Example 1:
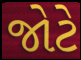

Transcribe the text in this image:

જોટે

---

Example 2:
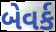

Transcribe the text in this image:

બેવર્ક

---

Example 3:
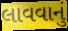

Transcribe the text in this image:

લાવવાનું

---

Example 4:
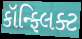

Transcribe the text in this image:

કૉન્ફ્લિક્ટ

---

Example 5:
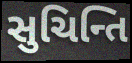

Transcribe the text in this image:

સુચિન્તિ